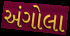
અંગોલા